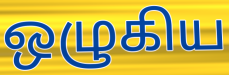
ஒழுகிய